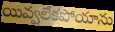
యివ్వలేకపోయాను